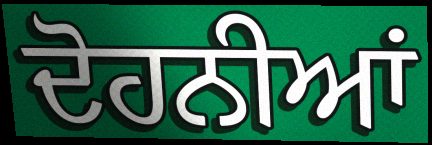
ਦੋਹਨੀਆਂ